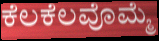
ಕೆಲಕೆಲವೊಮ್ಮೆ